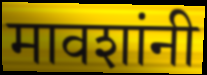
मावशांनी